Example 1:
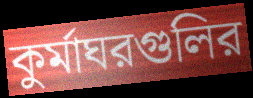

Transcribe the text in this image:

কুর্মাঘরগুলির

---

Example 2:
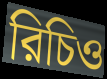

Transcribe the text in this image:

রিচিও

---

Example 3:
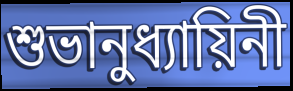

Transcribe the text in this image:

শুভানুধ্যায়িনী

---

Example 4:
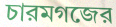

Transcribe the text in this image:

চারমগজের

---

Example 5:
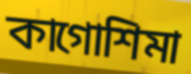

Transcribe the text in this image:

কাগোশিমা